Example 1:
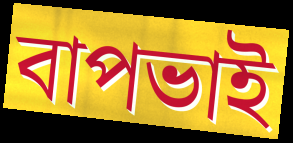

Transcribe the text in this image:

বাপভাই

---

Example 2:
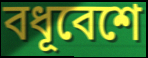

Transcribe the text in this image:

বধূবেশে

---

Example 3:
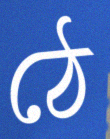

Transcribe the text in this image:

ঠে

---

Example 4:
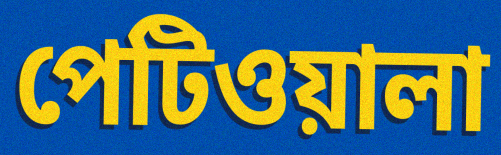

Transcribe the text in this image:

পেটিওয়ালা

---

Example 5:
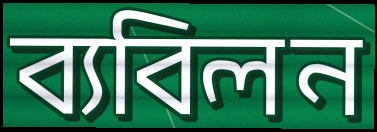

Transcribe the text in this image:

ব্যবিলন